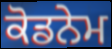
ਕੋਡਨੇਮ